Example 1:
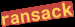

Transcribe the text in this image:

ransack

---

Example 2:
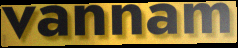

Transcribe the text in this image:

vannam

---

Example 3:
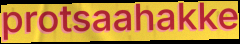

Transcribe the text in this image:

protsaahakke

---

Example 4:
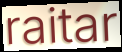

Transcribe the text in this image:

raitar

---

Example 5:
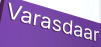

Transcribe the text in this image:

Varasdaar